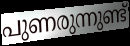
പുണരുന്നുണ്ട്